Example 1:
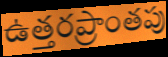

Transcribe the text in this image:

ఉత్తరప్రాంతపు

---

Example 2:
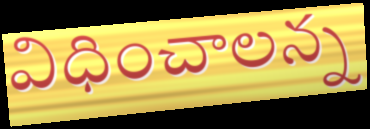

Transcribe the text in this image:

విధించాలన్న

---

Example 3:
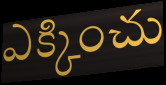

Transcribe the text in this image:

ఎక్కించు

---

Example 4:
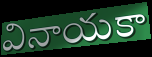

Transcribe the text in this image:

వినాయకా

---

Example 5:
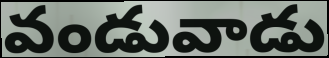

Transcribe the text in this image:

వండువాడు